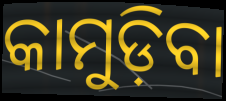
କାମୁଡ଼ିବା